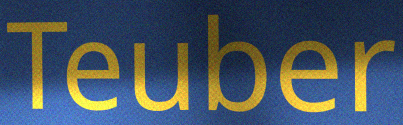
Teuber